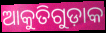
ଆକୁତିଗୁଡ଼ାକ